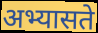
अभ्यासते